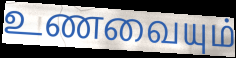
உணவையும்